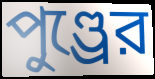
পুণ্ড্রের